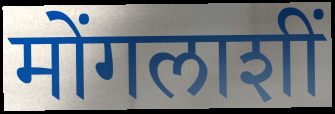
मोंगलाशीं